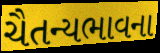
ચૈતન્યભાવના